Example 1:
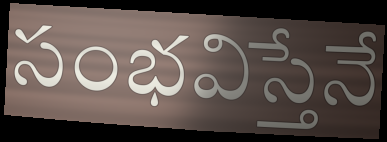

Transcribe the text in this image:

సంభవిస్తేనే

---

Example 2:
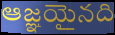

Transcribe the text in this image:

ఆజ్ఞయైనది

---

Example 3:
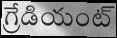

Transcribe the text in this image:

గ్రేడియంట్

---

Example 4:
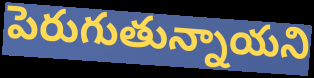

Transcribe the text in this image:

పెరుగుతున్నాయని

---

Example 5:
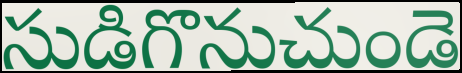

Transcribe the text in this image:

సుడిగొనుచుండె